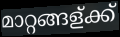
മാറ്റങ്ങള്ക്ക്